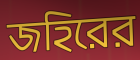
জহিরের